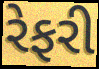
રેફરી